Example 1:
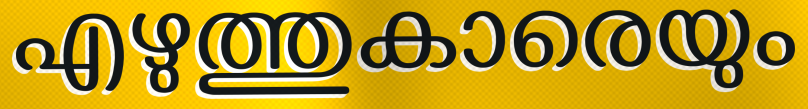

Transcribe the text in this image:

എഴുത്തുകാരെയും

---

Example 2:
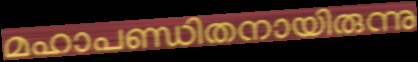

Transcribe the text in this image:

മഹാപണ്ഡിതനായിരുന്നു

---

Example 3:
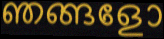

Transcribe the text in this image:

ഞങ്ങളോ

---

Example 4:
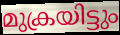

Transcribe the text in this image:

മുക്രയിട്ടും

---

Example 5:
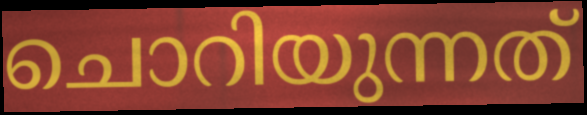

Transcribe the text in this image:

ചൊറിയുന്നത്